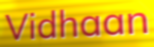
Vidhaan